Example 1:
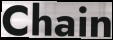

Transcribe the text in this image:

Chain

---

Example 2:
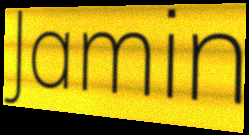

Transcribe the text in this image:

Jamin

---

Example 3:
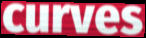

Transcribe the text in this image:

curves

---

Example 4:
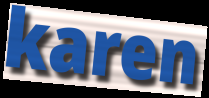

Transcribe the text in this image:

karen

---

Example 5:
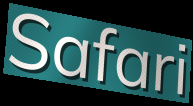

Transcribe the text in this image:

Safari